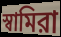
স্বামিরা